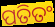
ପତିତଂ